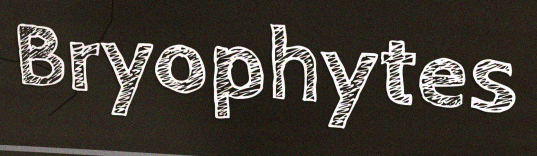
Bryophytes